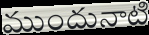
ముందునాటి